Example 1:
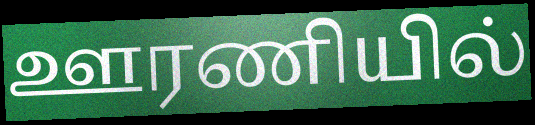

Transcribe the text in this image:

ஊரணியில்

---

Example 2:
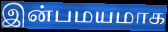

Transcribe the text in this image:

இன்பமயமாக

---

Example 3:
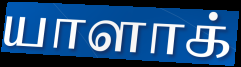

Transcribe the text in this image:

யாளாக்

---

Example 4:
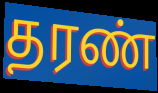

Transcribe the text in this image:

தரண்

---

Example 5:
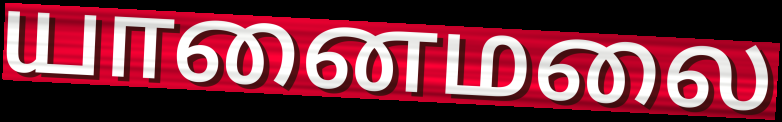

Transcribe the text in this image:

யானைமலை